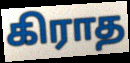
கிராத